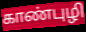
காண்புழி